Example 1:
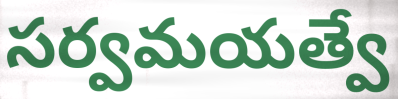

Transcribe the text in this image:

సర్వమయత్వే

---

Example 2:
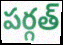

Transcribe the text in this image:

పర్గత్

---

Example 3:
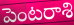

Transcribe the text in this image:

పెంటరాశి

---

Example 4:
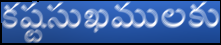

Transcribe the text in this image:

కష్టసుఖములకు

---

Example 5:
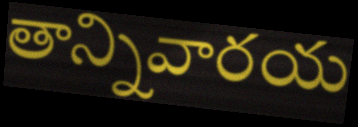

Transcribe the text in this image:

తాన్నివారయ